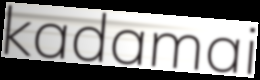
kadamai